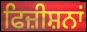
ਫਿਜ਼ੀਸ਼ਨਾਂ